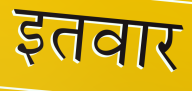
इतवार